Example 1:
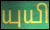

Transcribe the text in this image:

யுயி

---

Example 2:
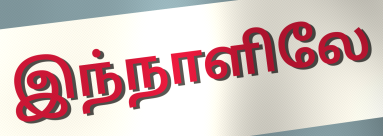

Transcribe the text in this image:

இந்நாளிலே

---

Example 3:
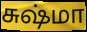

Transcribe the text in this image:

சுஷ்மா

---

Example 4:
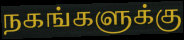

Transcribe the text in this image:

நகங்களுக்கு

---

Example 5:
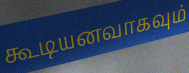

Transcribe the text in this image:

கூடியனவாகவும்